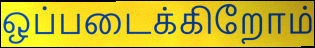
ஒப்படைக்கிறோம்